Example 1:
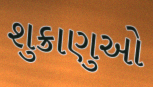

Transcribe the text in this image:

શુક્રાણુઓ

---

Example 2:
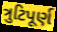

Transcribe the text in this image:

ત્રુટિપૂર્ણ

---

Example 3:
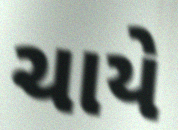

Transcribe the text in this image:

ચાયે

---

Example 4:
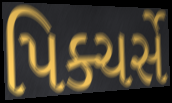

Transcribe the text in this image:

પિક્ચર્સે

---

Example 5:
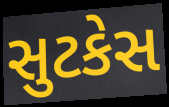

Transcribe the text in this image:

સુટકેસ